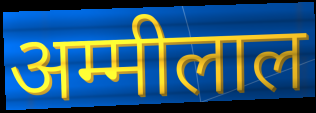
अम्मीलाल